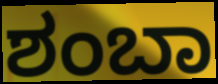
ಶಂಬಾ